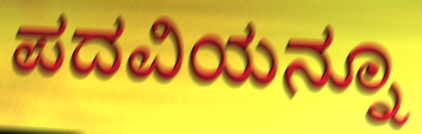
ಪದವಿಯನ್ನೂ